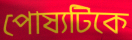
পোষ্যটিকে